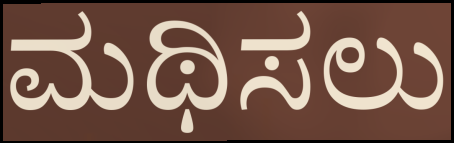
ಮಥಿಸಲು